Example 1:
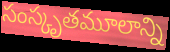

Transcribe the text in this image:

సంస్కృతమూలాన్ని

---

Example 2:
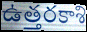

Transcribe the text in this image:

ఉత్తరకాశి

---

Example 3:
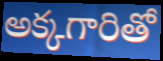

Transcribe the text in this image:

అక్కగారితో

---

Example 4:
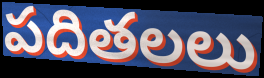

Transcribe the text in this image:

పదితలలు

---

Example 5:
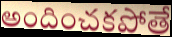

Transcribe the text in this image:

అందించకపోతే